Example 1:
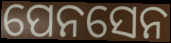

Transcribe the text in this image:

ପେନସେନ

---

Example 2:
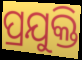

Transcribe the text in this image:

ପ୍ରଯୁକ୍ତି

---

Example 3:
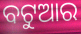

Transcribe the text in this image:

ବଟୁଆର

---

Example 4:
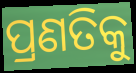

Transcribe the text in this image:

ପ୍ରଣତିକୁ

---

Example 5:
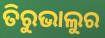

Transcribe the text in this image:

ତିରୁଭାଲୁର